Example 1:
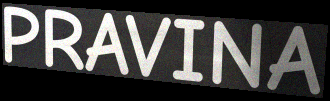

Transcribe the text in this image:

PRAVINA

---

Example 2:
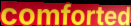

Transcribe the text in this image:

comforted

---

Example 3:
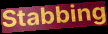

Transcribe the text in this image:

Stabbing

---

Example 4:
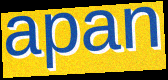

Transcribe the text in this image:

apan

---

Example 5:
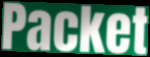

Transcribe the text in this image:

Packet